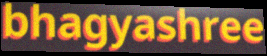
bhagyashree